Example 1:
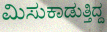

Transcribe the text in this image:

ಮಿಸುಕಾಡುತ್ತಿದ್ದ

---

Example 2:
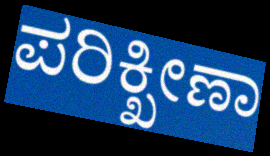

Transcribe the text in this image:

ಪರಿಕ್ಖೀಣಾ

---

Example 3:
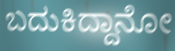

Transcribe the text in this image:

ಬದುಕಿದ್ದಾನೋ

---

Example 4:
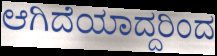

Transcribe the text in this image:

ಆಗಿದೆಯಾದ್ದರಿಂದ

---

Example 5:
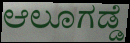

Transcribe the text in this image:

ಆಲೂಗಡ್ಡೆ